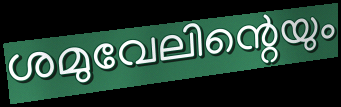
ശമുവേലിന്റെയും